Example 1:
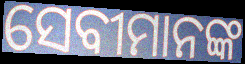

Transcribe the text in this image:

ସେବୀମାନଙ୍କ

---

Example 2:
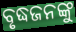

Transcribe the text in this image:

ବୃଦ୍ଧଜନଙ୍କୁ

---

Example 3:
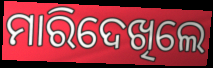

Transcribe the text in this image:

ମାରିଦେଖିଲେ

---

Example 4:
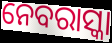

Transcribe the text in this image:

ନେବରାସ୍କା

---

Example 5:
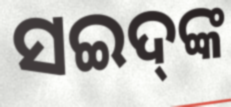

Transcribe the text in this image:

ସଇଦ୍‌ଙ୍କ